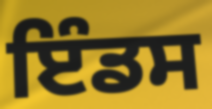
ਇੰਡਸ